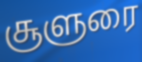
சூளுரை